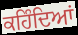
ਕਹਿੰਦਿਆਂ